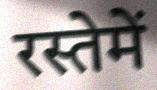
रस्तेमें